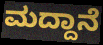
ಮದ್ದಾನೆ